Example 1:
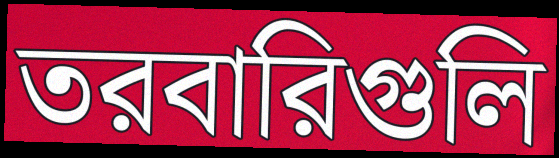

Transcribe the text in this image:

তরবারিগুলি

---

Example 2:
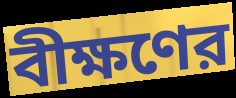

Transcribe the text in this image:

বীক্ষণের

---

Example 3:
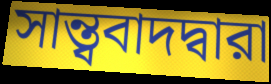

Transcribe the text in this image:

সান্ত্ববাদদ্বারা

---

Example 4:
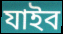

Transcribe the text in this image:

যাইব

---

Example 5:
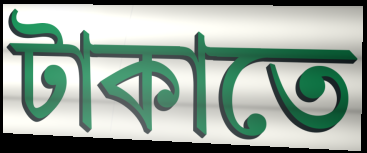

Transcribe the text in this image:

টাকাতে